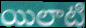
యిలాటి